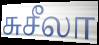
சுசீலா